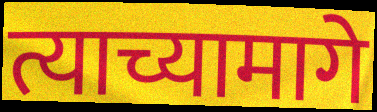
त्याच्यामागे